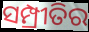
ସମ୍ପ୍ରୀତିର